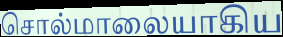
சொல்மாலையாகிய